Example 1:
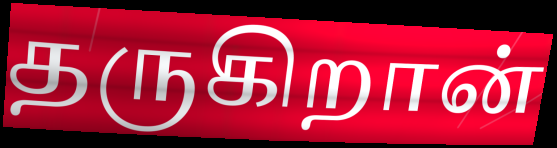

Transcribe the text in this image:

தருகிறான்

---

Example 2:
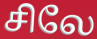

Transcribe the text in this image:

சிலே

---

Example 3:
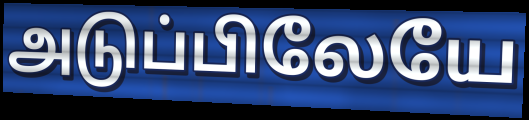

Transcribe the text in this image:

அடுப்பிலேயே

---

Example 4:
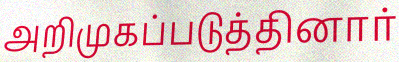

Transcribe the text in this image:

அறிமுகப்படுத்தினார்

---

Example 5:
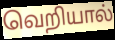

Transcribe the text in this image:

வெறியால்